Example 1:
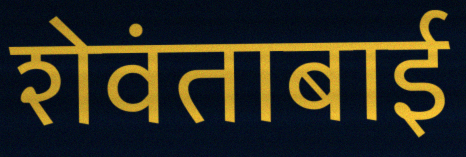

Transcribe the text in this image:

शेवंताबाई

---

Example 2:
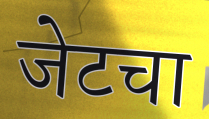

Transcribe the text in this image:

जेटचा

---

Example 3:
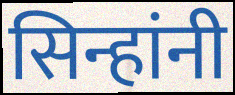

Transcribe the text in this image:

सिन्हांनी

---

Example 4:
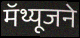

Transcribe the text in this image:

मॅथ्यूजने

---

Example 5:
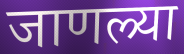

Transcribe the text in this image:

जाणल्या